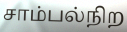
சாம்பல்நிற